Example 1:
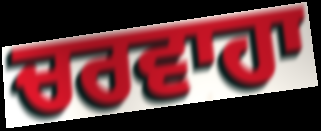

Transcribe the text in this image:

ਚਰਵਾਹਾ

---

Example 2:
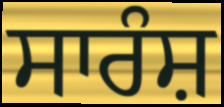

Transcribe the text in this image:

ਸਾਰੰਸ਼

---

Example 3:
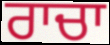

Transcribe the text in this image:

ਰਾਚਾ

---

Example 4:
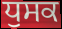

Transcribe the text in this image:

ਧੁਸਕ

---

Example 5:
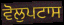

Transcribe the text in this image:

ਵੋਲੁਪਟਾਸ